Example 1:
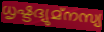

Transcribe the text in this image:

ധൃഷ്ടദ്യുമ്നസ്യ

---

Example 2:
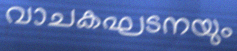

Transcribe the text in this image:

വാചകഘടനയും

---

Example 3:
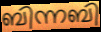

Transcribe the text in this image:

ബിന്നബി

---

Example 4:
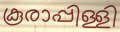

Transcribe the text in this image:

കൂരാപ്പിള്ളി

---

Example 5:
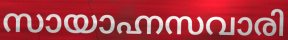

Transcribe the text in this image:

സായാഹ്നസവാരി